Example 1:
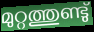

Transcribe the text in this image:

മുറ്റത്തുണ്ടു്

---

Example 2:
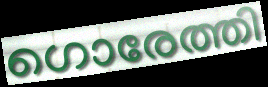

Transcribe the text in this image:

ഗൊരേത്തി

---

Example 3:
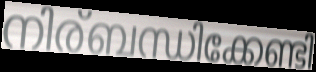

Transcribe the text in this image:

നിര്ബന്ധിക്കേണ്ടി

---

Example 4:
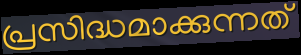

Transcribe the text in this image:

പ്രസിദ്ധമാക്കുന്നത്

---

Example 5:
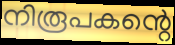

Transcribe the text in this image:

നിരൂപകന്റെ